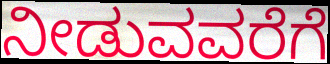
ನೀಡುವವರೆಗೆ